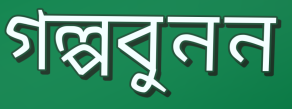
গল্পবুনন